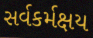
સર્વકર્મક્ષય